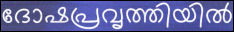
ദോഷപ്രവൃത്തിയിൽ